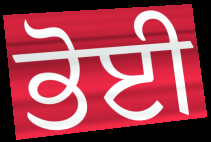
ਭੋਈ